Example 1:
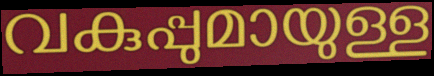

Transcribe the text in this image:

വകുപ്പുമായുള്ള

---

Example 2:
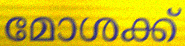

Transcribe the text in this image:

മോശക്ക്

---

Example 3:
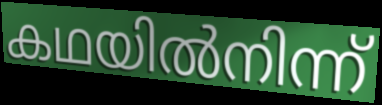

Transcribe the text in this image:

കഥയിൽനിന്ന്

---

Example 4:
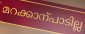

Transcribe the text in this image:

മറക്കാന്പാടില്ല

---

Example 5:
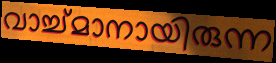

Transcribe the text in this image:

വാച്ച്മാനായിരുന്ന